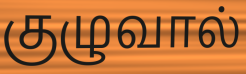
குழுவால்